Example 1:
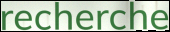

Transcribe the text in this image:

recherche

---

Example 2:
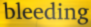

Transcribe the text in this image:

bleeding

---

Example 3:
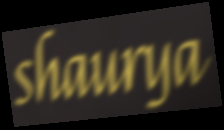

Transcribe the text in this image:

shaurya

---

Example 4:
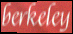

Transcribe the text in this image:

berkeley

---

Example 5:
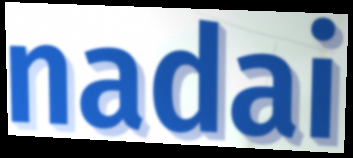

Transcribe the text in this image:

nadai